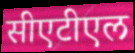
सीएटीएल